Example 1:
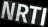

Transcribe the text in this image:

NRTI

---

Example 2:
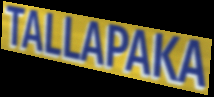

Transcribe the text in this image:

TALLAPAKA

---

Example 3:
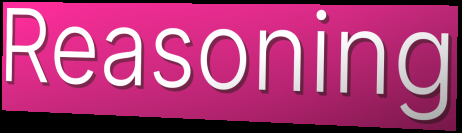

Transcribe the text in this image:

Reasoning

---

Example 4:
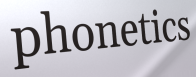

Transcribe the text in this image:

phonetics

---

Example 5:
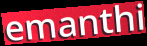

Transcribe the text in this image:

emanthi